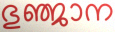
ഭുഞ്ജാന